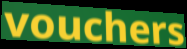
vouchers